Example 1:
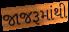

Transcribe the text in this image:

જાજરૂમાંથી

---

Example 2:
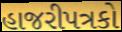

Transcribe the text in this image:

હાજરીપત્રકો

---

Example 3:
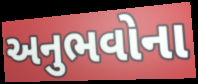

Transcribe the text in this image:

અનુભવોના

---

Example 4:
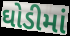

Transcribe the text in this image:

ઘોડીમાં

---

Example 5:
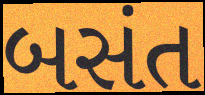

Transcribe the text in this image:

બસંત